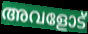
അവളോട്